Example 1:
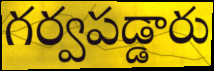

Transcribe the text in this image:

గర్వపడ్డారు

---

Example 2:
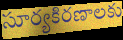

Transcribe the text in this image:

సూర్యకిరణాలకు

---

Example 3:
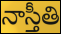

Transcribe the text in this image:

నాస్తీతి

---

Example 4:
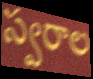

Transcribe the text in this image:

స్వరాల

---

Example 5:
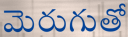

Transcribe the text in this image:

మెరుగుతో